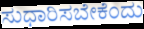
ಸುಧಾರಿಸಬೇಕೆಂದು